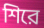
শিরে